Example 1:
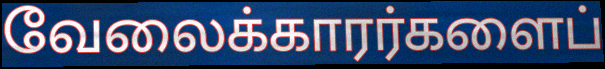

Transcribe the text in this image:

வேலைக்காரர்களைப்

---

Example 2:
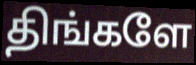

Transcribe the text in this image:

திங்களே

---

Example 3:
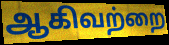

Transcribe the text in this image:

ஆகிவற்றை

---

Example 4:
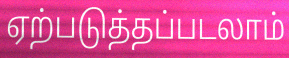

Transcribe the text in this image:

ஏற்படுத்தப்படலாம்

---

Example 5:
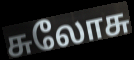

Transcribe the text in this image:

சுலோசு